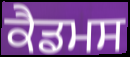
ਕੈਡਮਸ